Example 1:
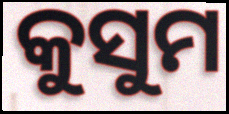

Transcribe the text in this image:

କୁସୁମ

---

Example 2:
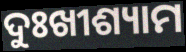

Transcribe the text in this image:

ଦୁଃଖୀଶ୍ୟାମ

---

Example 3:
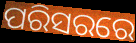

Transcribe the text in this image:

ପରିସରରେ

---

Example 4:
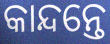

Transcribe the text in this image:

କାନ୍ଦନ୍ତେ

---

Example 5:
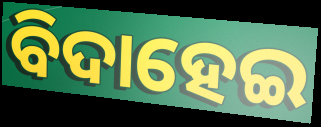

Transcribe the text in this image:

ବିଦାହେଇ